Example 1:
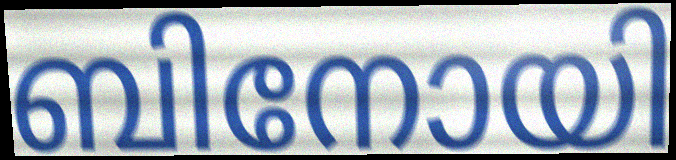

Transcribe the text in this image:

ബിനോയി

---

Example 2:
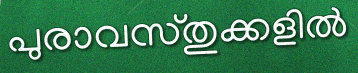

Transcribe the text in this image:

പുരാവസ്തുക്കളിൽ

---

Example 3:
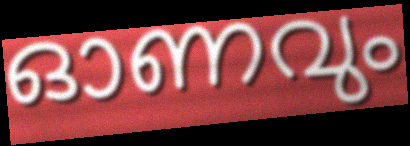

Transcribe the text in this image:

ഓണവും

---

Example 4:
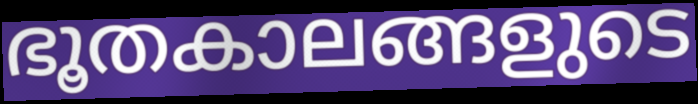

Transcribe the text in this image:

ഭൂതകാലങ്ങളുടെ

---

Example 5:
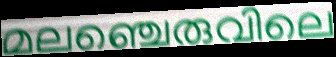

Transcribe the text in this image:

മലഞ്ചെരുവിലെ